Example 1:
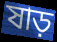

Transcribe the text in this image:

ষাড়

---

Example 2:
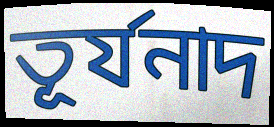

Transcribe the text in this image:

তূর্যনাদ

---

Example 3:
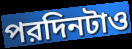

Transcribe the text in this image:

পরদিনটাও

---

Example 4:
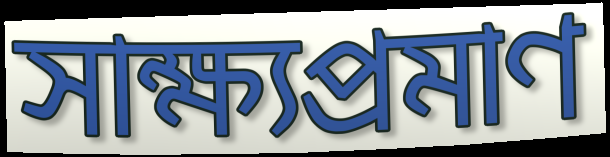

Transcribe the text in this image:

সাক্ষ্যপ্রমাণ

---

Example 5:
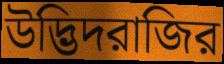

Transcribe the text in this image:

উদ্ভিদরাজির